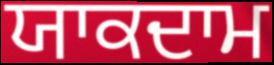
ਯਾਕਦਾਮ